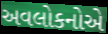
અવલોકનોએ